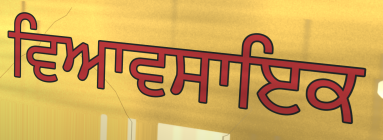
ਵਿਆਵਸਾਇਕ